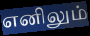
எனிலும்